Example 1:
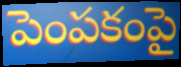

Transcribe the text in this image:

పెంపకంపై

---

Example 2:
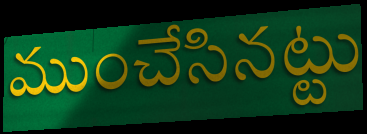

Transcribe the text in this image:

ముంచేసినట్టు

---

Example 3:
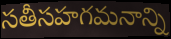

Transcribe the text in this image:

సతీసహగమనాన్ని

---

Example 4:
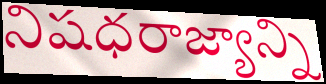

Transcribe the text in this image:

నిషధరాజ్యాన్ని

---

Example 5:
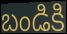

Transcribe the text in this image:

బండికి